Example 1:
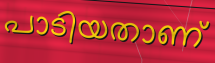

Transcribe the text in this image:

പാടിയതാണ്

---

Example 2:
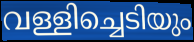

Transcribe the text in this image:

വള്ളിച്ചെടിയും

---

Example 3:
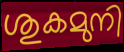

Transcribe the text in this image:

ശുകമുനി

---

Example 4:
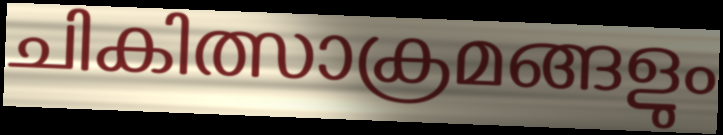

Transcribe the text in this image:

ചികിത്സാക്രമങ്ങളും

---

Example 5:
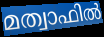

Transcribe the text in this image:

മത്വാഫിൽ